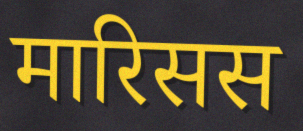
मारिसस